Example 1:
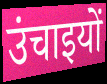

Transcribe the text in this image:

उंचाइयों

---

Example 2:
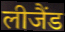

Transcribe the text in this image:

लीजैंड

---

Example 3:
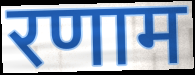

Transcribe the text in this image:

रणाम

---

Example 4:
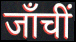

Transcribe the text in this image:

जाँचीं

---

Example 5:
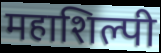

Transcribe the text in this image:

महाशिल्पी